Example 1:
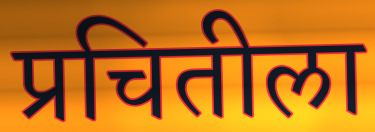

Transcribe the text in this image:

प्रचितीला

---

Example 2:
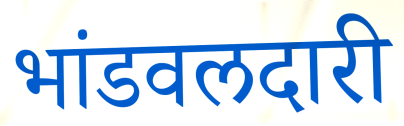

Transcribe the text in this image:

भांडवलदारी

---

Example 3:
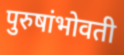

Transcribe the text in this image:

पुरुषांभोवती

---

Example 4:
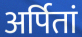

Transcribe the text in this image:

अर्पितां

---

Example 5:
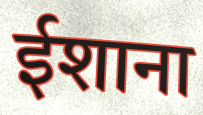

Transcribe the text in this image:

ईशाना